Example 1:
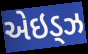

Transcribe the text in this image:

એઇડ્ઝ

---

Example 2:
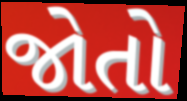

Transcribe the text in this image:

જોતો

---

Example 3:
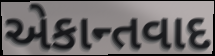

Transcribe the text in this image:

એકાન્તવાદ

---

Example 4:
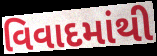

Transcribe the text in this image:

વિવાદમાંથી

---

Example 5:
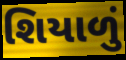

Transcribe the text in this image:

શિયાળું